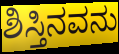
ಶಿಸ್ತಿನವನು